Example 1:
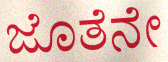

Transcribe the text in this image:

ಜೊತೆನೇ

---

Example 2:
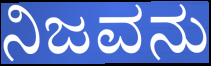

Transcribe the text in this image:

ನಿಜವನು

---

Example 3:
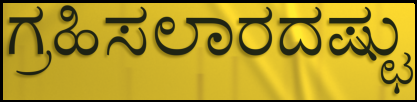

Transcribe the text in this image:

ಗ್ರಹಿಸಲಾರದಷ್ಟು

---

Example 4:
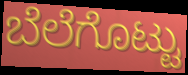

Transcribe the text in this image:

ಬೆಲೆಗೊಟ್ಟು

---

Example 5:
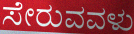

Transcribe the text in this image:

ಸೇರುವವಳು